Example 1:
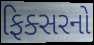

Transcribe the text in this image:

ફિક્સરનો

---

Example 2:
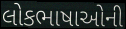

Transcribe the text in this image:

લોકભાષાઓની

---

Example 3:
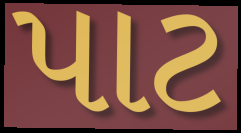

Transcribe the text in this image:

પાટ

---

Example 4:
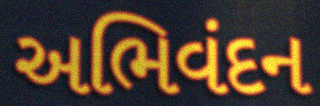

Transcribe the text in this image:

અભિવંદન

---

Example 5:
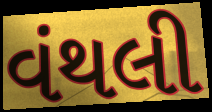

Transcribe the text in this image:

વંથલી